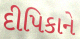
દીપિકાને